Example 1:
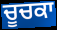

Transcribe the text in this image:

ਚੂਚਕਾ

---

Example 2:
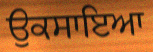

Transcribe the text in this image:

ਉਕਸਾਇਆ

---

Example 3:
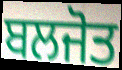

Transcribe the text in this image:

ਬਲਜੋਤ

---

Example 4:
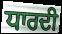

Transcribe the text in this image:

ਧਾਰਦੀ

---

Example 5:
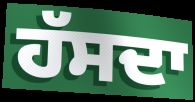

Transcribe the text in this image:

ਹੱਸਦਾ